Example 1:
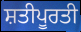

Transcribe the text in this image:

ਸ਼ਤੀਪੂਰਤੀ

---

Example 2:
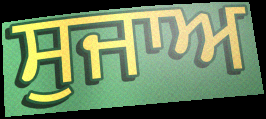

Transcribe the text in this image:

ਸੁਜਾਅ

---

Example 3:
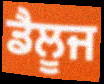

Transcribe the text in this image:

ਡੈਲੂਜ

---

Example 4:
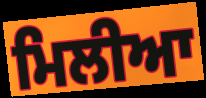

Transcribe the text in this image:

ਮਿਲੀਆ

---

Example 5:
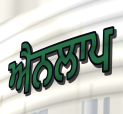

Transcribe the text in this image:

ਐਨਲਾਪ